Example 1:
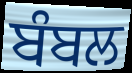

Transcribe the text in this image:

ਬੰਬਲ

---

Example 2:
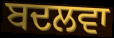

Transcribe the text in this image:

ਬਦਲਵਾ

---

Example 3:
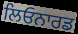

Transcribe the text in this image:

ਲਿਓਨਾਰਡ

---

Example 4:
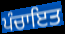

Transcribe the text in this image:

ਪੰਚਾਇਤ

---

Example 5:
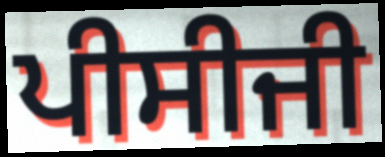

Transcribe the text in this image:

ਪੀਸੀਜੀ